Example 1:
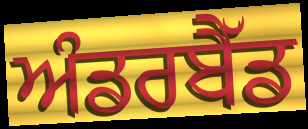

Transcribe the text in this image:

ਅੰਡਰਬੈੱਡ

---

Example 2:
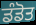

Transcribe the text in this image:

ਡੰਡੋਤ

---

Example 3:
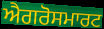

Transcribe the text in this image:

ਐਗਰੋਸਮਾਰਟ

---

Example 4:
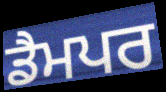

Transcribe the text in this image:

ਡੈਮਪਰ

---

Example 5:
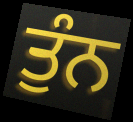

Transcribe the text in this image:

ਤੁੰਨ